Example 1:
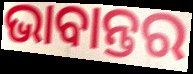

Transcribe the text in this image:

ଭାବାନ୍ତର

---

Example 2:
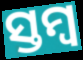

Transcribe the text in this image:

ସ୍ତମ୍ଵ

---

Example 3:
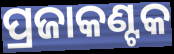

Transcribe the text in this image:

ପ୍ରଜାକଣ୍ଟକ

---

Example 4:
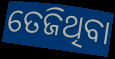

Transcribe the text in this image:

ତେଜିଥିବା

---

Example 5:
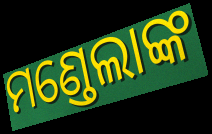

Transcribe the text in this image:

ମଣ୍ଡେଲାଙ୍କ